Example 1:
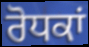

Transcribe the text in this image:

ਰੋਧਕਾਂ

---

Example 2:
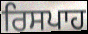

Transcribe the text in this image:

ਰਿਸਪਾਹ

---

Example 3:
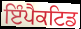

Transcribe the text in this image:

ਇੰਪੈਕਟਿਡ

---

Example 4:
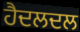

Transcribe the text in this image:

ਹੈਦਲਦਲ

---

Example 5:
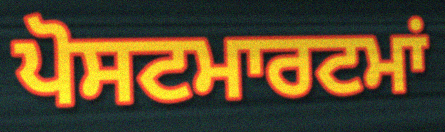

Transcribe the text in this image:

ਪੋਸਟਮਾਰਟਮਾਂ